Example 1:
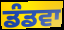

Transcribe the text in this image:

ਡੰਡਵਾ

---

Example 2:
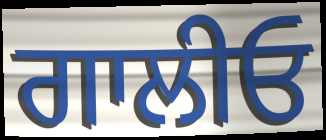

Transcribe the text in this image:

ਗਾਲੀਓ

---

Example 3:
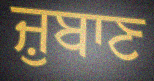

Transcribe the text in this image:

ਜ਼ੁਬਾਣ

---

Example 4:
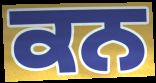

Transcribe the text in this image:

ਕਨ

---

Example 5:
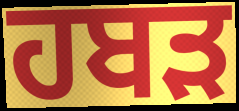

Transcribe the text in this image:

ਹਬੜ